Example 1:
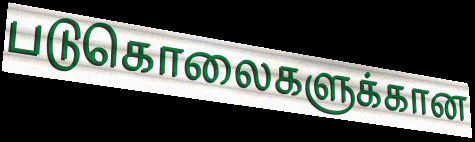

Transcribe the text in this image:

படுகொலைகளுக்கான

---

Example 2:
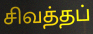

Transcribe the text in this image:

சிவத்தப்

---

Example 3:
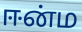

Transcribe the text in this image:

ஈன்ம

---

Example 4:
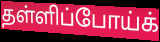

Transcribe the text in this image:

தள்ளிப்போய்க்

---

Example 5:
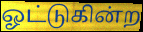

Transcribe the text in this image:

ஓட்டுகின்ற